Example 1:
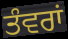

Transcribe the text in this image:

ਤੰਵਰਾਂ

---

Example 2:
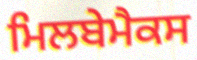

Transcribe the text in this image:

ਮਿਲਬੇਮੈਕਸ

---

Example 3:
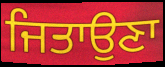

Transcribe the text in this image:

ਜਿਤਾਉਣਾ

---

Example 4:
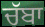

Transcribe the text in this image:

ਚੱਬਾ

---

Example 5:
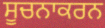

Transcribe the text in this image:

ਸੂਚਨਾਕਰਨ